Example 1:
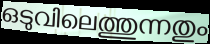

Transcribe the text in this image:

ഒടുവിലെത്തുന്നതും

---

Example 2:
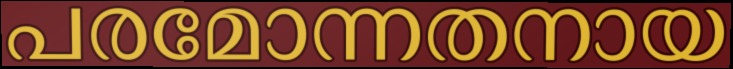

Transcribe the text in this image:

പരമോന്നതനായ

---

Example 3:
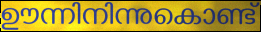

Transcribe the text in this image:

ഊന്നിനിന്നുകൊണ്ട്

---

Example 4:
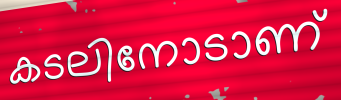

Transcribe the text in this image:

കടലിനോടാണ്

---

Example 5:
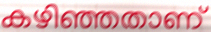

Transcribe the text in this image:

കഴിഞ്ഞതാണ്